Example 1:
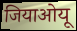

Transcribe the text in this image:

जियाओयू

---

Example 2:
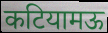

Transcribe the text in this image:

कटियामऊ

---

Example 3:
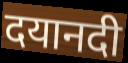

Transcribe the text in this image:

दयानदी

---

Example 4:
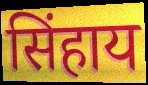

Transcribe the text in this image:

सिंहाय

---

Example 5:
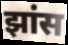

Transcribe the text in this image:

झांस